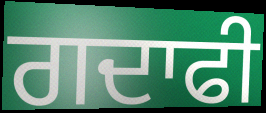
ਗਦਾਫੀ